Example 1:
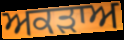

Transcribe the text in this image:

ਅਕੜਾਅ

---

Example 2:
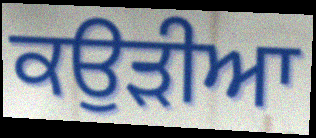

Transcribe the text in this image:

ਕਉੜੀਆ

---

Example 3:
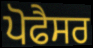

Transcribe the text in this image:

ਪੋਫੈਸਰ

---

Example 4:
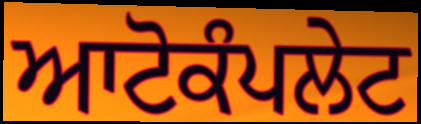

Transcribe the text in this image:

ਆਟੋਕੰਪਲੇਟ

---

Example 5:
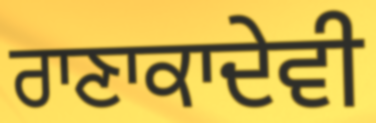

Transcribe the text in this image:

ਰਾਣਾਕਾਦੇਵੀ